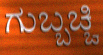
ಗುಬ್ಬಚ್ಚಿ